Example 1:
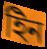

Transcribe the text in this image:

ইিন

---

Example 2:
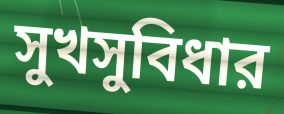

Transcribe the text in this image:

সুখসুবিধার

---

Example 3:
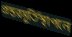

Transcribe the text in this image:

প্রস্তরমূর্তিস্থাপনে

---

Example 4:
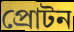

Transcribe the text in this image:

প্রোটন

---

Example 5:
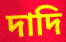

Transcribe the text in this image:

দাদি